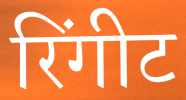
रिंगीट